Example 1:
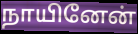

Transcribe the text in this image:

நாயினேன்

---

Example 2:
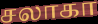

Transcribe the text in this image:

சலாகா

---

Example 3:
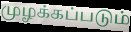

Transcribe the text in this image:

முழக்கப்படும்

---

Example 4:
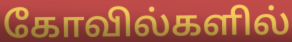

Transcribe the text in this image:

கோவில்களில்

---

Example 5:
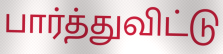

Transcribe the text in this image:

பார்த்துவிட்டு